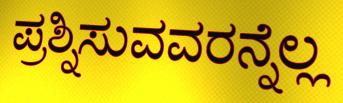
ಪ್ರಶ್ನಿಸುವವರನ್ನೆಲ್ಲ